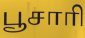
பூசாரி